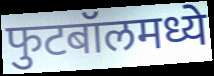
फुटबॉलमध्ये